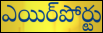
ఎయిర్‌పోర్టు